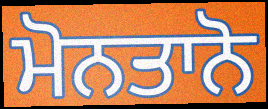
ਮੋਨਤਾਨੋ